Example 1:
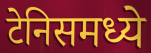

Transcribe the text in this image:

टेनिसमध्ये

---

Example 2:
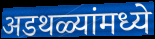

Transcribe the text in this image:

अडथळ्यांमध्ये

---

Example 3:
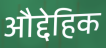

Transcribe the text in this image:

औद्देहिक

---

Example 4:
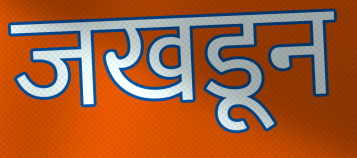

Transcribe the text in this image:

जखडून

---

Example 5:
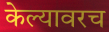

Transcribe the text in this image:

केल्यावरच